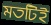
মতটিই